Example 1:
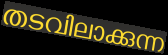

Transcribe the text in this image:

തടവിലാക്കുന്ന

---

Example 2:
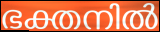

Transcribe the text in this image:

ഭക്തനിൽ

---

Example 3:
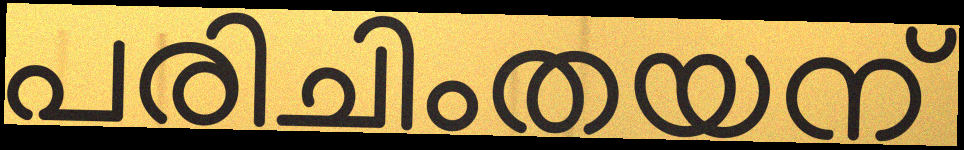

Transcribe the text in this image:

പരിചിംതയന്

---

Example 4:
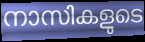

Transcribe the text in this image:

നാസികളുടെ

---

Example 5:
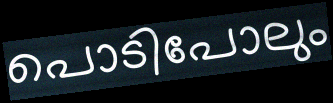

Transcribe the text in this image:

പൊടിപോലും